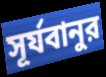
সূর্যবানুর